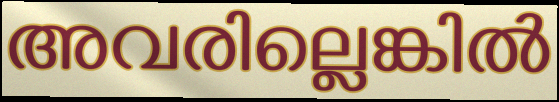
അവരില്ലെങ്കിൽ